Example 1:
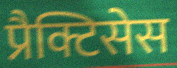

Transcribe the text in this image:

प्रैक्टिसेस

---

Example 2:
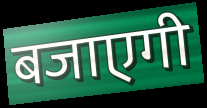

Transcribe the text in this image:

बजाएगी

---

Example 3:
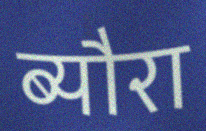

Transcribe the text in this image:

ब्यौरा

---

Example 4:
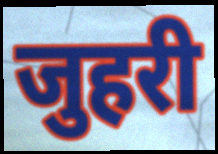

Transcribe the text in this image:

जुहरी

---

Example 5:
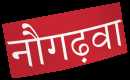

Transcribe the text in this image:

नौगढ़वा